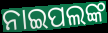
ନାଇପଲଙ୍କ